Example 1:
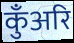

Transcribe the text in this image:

कुँअरि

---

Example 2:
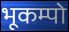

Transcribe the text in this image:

भूकम्पो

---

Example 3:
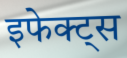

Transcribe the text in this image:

इफेक्‍ट्स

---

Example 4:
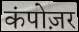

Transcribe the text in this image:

कंपोज़र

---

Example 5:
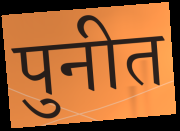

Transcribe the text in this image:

पुनीत